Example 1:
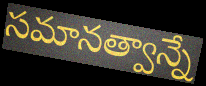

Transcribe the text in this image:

సమానత్వాన్నే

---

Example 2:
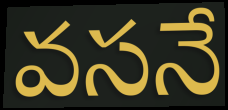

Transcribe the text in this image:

వసనే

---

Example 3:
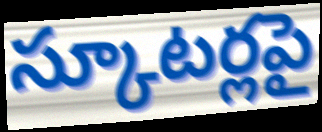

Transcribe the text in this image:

స్కూటర్లపై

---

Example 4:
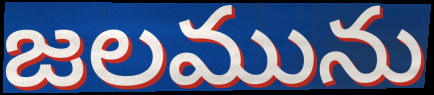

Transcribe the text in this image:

జలమును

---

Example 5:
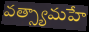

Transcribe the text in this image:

వత్స్యామహే